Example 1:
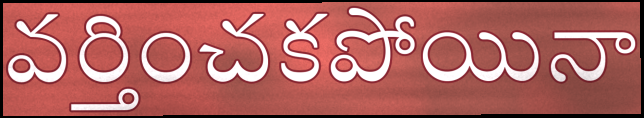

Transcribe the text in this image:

వర్తించకపోయినా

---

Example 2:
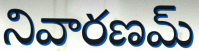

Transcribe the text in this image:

నివారణమ్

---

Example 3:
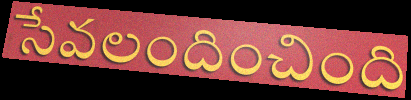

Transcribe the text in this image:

సేవలందించింది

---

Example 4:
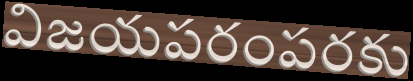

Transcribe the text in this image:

విజయపరంపరకు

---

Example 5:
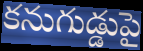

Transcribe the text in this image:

కనుగుడ్డుపై